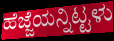
ಹೆಜ್ಜೆಯನ್ನಿಟ್ಟಳು